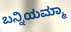
ಬನ್ನಿಯಮ್ಮಾ